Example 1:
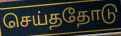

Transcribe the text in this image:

செய்ததோடு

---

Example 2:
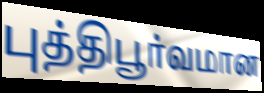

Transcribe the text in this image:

புத்திபூர்வமான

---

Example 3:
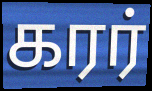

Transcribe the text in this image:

கரர்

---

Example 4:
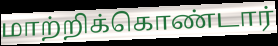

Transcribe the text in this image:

மாற்றிக்கொண்டார்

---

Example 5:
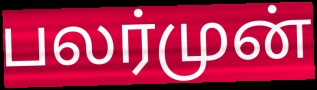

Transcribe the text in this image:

பலர்முன்